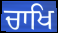
ਚਾਖਿ